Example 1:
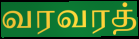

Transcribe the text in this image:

வரவரத்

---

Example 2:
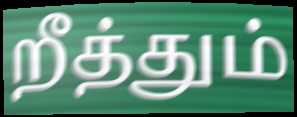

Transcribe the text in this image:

றீத்தும்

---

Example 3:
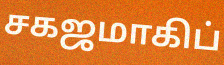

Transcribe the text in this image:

சகஜமாகிப்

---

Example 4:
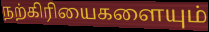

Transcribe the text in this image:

நற்கிரியைகளையும்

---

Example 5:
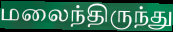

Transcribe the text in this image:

மலைந்திருந்து